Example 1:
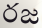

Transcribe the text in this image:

రజ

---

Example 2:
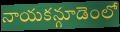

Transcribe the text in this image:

నాయకన్గూడెంలో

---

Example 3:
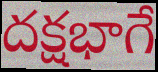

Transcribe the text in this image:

దక్షభాగే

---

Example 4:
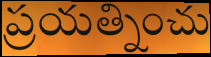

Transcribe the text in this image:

ప్రయత్నించు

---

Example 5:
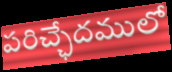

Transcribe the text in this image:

పరిచ్ఛేదములో